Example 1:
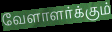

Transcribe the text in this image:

வேளாளர்க்கும்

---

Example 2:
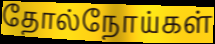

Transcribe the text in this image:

தோல்நோய்கள்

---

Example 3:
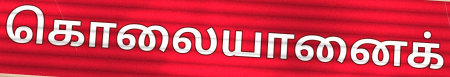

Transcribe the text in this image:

கொலையானைக்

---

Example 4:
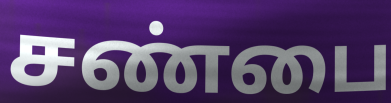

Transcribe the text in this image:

சண்பை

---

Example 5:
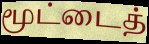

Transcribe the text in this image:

மூட்டைத்